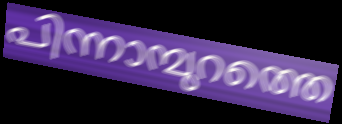
പിന്നാമ്പുറത്തെ